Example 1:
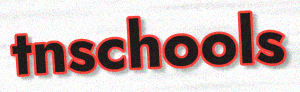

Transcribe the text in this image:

tnschools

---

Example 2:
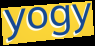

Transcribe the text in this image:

yogy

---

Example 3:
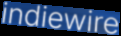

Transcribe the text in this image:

indiewire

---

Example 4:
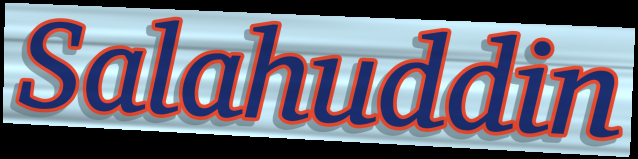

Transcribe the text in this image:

Salahuddin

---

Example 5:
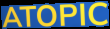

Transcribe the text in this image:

ATOPIC